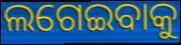
ଲଗେଇବାକୁ